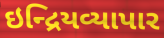
ઇન્દ્રિયવ્યાપાર